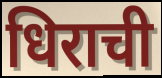
धिराची